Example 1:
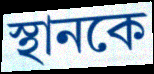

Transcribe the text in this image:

স্থানকে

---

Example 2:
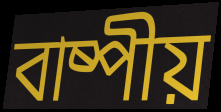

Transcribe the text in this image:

বাষ্পীয়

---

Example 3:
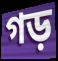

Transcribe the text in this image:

গড়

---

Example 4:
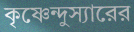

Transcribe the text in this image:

কৃষ্ণেন্দুস্যারের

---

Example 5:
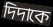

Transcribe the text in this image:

দিদাকে